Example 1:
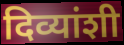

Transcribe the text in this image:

दिव्यांशी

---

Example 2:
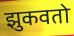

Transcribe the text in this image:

झुकवतो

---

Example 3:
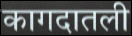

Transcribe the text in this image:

कागदातली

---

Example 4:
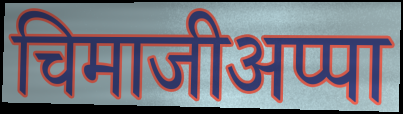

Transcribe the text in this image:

चिमाजीअप्पा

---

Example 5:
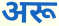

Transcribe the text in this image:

अरू